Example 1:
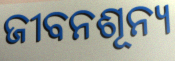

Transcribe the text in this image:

ଜୀବନଶୂନ୍ୟ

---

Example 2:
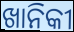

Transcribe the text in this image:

ଖାନିକୀ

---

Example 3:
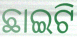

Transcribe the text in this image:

ଛାଇଟି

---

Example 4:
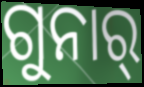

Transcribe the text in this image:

ଗୁନାର୍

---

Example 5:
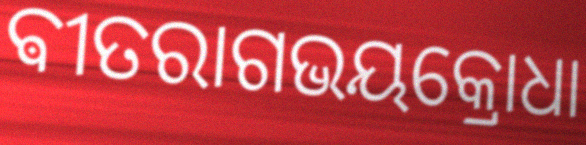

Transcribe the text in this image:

ଵୀତରାଗଭୟକ୍ରୋଧା